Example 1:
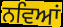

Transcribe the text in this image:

ਨਵਿਆਂ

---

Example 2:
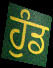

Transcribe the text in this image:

ਹੁੰਡ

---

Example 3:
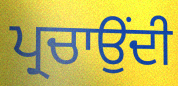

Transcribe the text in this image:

ਪ੍ਰਚਾਉਂਦੀ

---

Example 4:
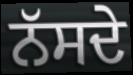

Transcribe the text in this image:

ਨੱਸਦੇ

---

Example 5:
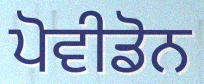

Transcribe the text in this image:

ਪੋਵੀਡੋਨ